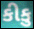
કીકુ